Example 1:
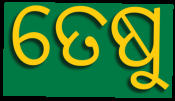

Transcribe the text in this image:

ତେଷୁ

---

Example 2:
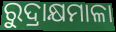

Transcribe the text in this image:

ରୁଦ୍ରାକ୍ଷମାଳା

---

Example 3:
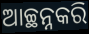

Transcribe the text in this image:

ଆଚ୍ଛନ୍ନକରି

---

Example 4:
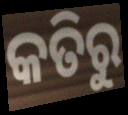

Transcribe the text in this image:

କତିରୁ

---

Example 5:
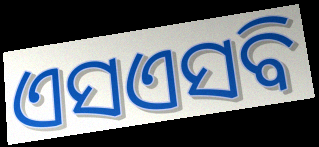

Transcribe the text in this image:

ଏସଏସବି